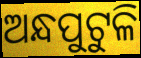
ଅନ୍ଧପୁଟୁଳି